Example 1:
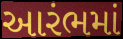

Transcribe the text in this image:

આરંભમાં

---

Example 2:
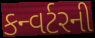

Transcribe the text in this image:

કન્વર્ટરની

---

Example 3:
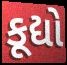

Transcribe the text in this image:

કૂદ્યો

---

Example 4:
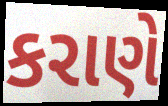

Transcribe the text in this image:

કરાણે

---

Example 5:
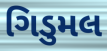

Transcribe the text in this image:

ગિડુમલ